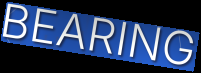
BEARING